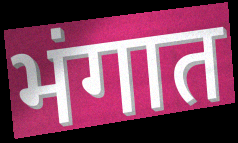
भंगात